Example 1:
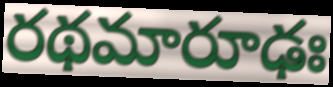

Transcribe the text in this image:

రథమారూఢః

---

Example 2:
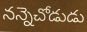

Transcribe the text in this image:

నన్నెచోడుడు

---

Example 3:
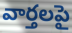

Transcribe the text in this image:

వార్తలపై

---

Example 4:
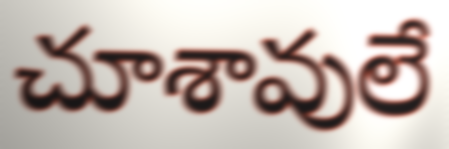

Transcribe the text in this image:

చూశావులే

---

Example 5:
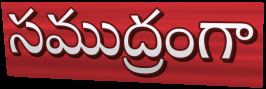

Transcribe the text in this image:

సముద్రంగా